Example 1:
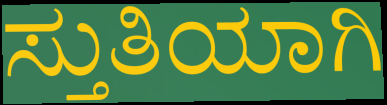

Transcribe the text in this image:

ಸ್ತುತಿಯಾಗಿ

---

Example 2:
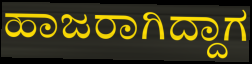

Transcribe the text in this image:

ಹಾಜರಾಗಿದ್ದಾಗ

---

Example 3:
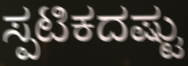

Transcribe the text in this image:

ಸ್ಪಟಿಕದಷ್ಟು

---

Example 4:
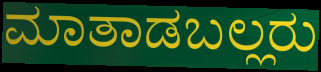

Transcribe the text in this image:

ಮಾತಾಡಬಲ್ಲರು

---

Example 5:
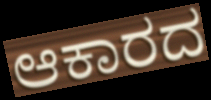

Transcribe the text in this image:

ಆಕಾರದ